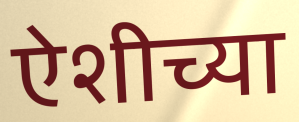
ऐशीच्या